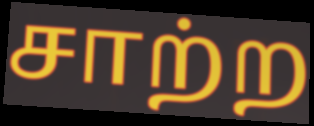
சாற்ற